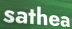
sathea